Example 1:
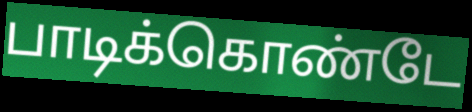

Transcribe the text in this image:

பாடிக்கொண்டே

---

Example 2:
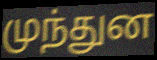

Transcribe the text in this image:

முந்துன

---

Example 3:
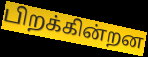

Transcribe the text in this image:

பிறக்கின்றன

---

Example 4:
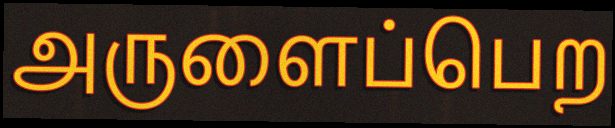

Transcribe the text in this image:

அருளைப்பெற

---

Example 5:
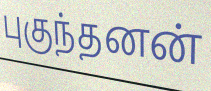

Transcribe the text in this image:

புகுந்தனன்